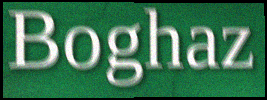
Boghaz